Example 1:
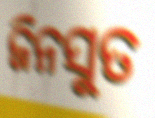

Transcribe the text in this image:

ଜିନସୁତ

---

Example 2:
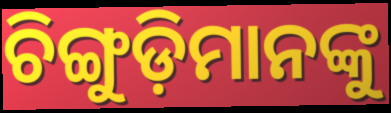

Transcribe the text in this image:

ଚିଙ୍ଗୁଡ଼ିମାନଙ୍କୁ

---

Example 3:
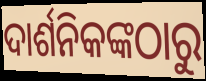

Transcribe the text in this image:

ଦାର୍ଶନିକଙ୍କଠାରୁ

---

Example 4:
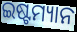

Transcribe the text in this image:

ଇଷ୍ଟମ୍ୟାନ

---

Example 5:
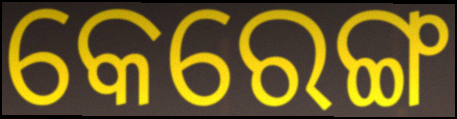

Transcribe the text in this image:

କେରେଙ୍ଗ